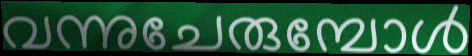
വന്നുചേരുമ്പോൾ